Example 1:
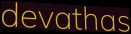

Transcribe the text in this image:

devathas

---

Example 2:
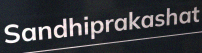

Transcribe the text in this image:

Sandhiprakashat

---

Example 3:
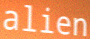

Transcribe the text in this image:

alien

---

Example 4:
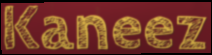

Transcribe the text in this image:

Kaneez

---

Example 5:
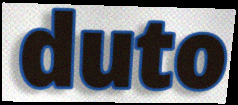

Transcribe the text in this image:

duto